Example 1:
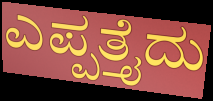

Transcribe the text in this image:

ಎಪ್ಪತ್ತೈದು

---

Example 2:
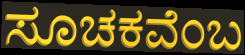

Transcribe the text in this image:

ಸೂಚಕವೆಂಬ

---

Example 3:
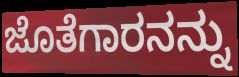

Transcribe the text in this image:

ಜೊತೆಗಾರನನ್ನು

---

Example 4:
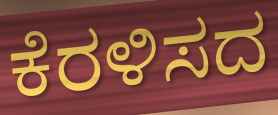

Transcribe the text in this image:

ಕೆರಳಿಸದ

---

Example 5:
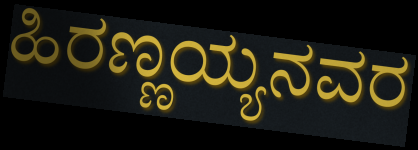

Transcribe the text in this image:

ಹಿರಣ್ಣಯ್ಯನವರ